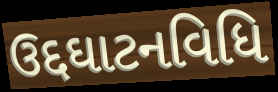
ઉદ્દઘાટનવિધિ